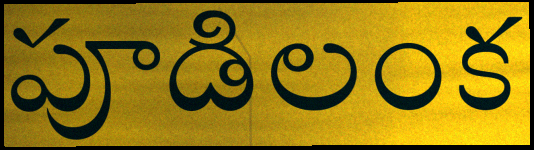
పూడిలంక